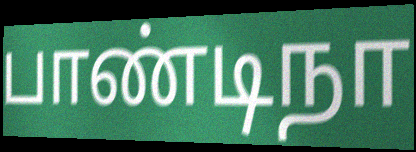
பாண்டிநா